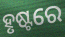
ହୃଷ୍ଟରେ